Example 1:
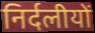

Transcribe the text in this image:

निर्दलीयों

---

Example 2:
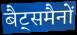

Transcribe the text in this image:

बैट्समैनों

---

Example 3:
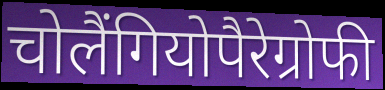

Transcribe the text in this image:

चोलैंगियोपैरेग्रोफी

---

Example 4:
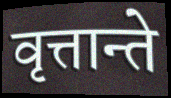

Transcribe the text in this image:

वृत्तान्ते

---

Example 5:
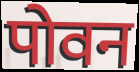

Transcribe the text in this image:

पोवन